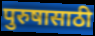
पुरुषासाठी